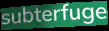
subterfuge